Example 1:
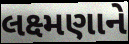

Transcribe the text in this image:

લક્ષ્મણાને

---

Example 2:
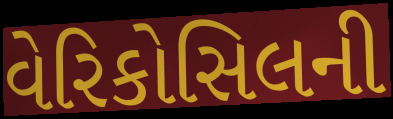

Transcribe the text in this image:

વેરિકોસિલની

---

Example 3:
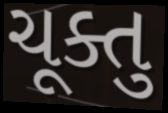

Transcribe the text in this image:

ચૂક્તુ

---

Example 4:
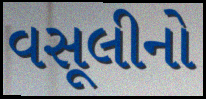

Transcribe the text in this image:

વસૂલીનો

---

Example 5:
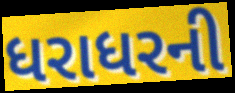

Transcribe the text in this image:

ધરાધરની